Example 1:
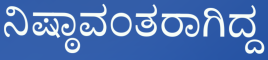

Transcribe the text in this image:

ನಿಷ್ಠಾವಂತರಾಗಿದ್ದ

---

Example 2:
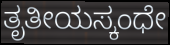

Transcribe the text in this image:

ತೃತೀಯಸ್ಕಂಧೇ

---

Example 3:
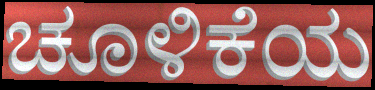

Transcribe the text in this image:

ಚೂಳಿಕೆಯ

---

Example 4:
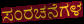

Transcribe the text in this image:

ಸಂರಚನೆಗಳ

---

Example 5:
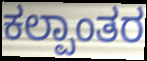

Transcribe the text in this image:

ಕಲ್ಪಾಂತರ